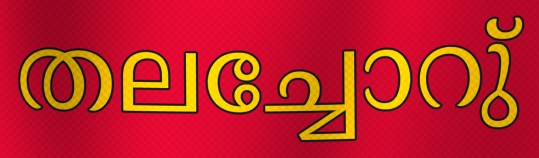
തലച്ചോറു്